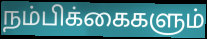
நம்பிக்கைகளும்